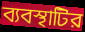
ব্যবস্থাটির